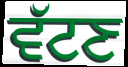
ਵੱਟਣ